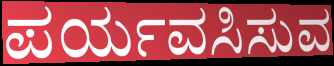
ಪರ್ಯವಸಿಸುವ